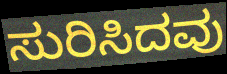
ಸುರಿಸಿದವು